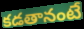
కడతానంటే